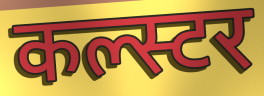
कल्स्टर